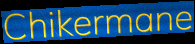
Chikermane